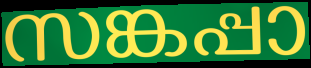
സങ്കപ്പാ